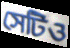
সেটিও